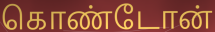
கொண்டோன்